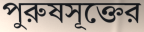
পুরুষসূক্তের